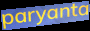
paryanta